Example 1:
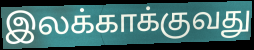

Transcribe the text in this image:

இலக்காக்குவது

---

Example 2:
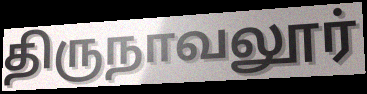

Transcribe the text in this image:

திருநாவலூர்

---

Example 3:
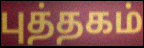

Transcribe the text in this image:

புத்தகம்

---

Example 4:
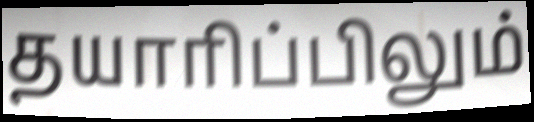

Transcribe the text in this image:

தயாரிப்பிலும்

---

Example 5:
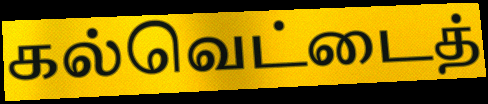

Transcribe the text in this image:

கல்வெட்டைத்